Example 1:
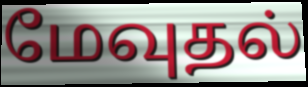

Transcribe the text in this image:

மேவுதல்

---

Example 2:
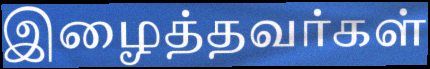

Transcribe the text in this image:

இழைத்தவர்கள்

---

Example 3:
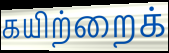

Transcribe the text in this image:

கயிற்றைக்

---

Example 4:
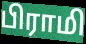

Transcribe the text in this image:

பிராமி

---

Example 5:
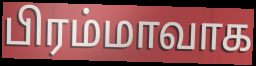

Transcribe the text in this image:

பிரம்மாவாக